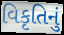
વિકૃતિનું